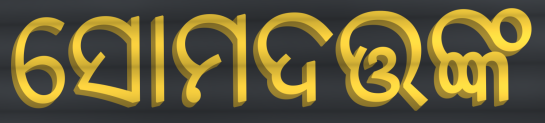
ସୋମଦତ୍ତଙ୍କ